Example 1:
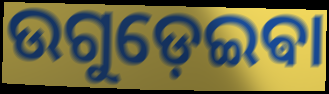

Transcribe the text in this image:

ଉଗୁଡ଼େଇଵା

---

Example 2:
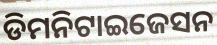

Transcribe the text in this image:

ଡିମନିଟାଇଜେସନ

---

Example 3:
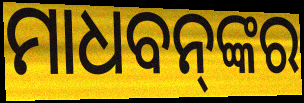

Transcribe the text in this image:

ମାଧବନ୍‌ଙ୍କର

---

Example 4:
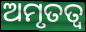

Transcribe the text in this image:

ଅମୃତତ୍ବ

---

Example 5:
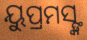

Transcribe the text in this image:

ୟୁପ୍ରମସ୍ଙ୍କ